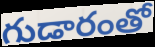
గుడారంతో